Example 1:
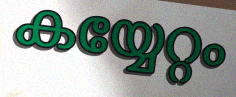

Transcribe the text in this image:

കയ്യേറ്റം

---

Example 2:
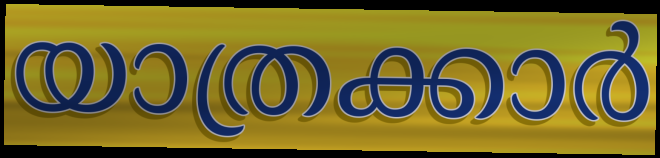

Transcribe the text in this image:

യാത്രക്കാർ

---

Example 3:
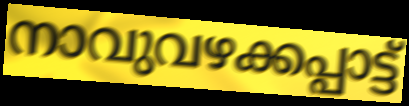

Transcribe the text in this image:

നാവുവഴക്കപ്പാട്ട്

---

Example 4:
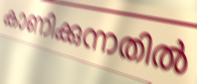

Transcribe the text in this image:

കാണിക്കുന്നതിൽ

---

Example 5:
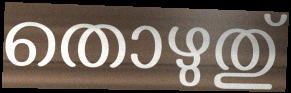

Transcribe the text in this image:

തൊഴുതു്